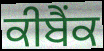
ਕੀਬੈਂਕ